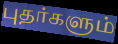
புதர்களும்